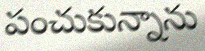
పంచుకున్నాను